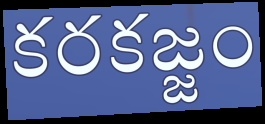
కరకజ్జం